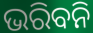
ଭରିବନି